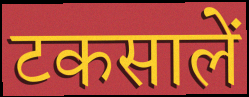
टकसालें